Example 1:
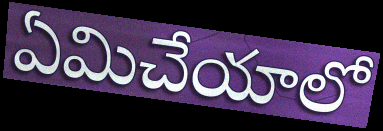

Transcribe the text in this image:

ఏమిచేయాలో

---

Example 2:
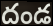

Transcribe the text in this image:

దండ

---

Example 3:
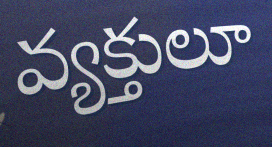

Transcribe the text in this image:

వ్యక్తులూ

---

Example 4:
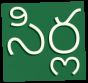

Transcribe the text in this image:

సిర్ల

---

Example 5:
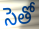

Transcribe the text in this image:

సెతో